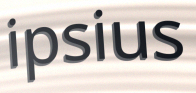
ipsius